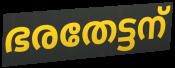
ഭരതേട്ടന്